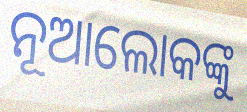
ନୂଆଲୋକଙ୍କୁ